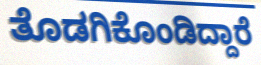
ತೊಡಗಿಕೊಂಡಿದ್ದಾರೆ